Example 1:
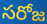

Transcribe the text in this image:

సరోజ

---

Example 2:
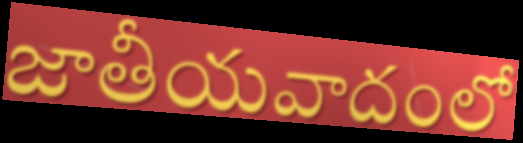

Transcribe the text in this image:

జాతీయవాదంలో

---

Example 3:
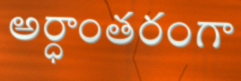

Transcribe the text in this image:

అర్ధాంతరంగా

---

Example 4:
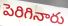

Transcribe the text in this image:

పెరిగినారు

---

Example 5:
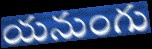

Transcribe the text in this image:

యనుంగు